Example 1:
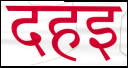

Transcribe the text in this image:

दहइ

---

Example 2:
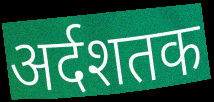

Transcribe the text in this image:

अर्दशतक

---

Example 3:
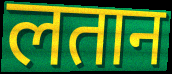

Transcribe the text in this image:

लतान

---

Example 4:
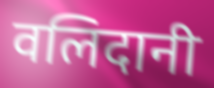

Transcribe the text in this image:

वलिदानी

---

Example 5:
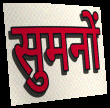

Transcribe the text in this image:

सुमनों